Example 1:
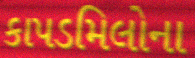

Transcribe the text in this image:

કાપડમિલોના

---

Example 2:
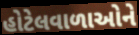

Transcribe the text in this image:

હોટેલવાળાઓને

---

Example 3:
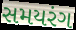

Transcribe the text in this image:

સમયરંગ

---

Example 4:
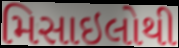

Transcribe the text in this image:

મિસાઇલોથી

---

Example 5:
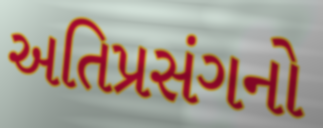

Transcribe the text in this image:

અતિપ્રસંગનો